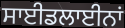
ਸਾਈਡਲਾਈਨਾਂ